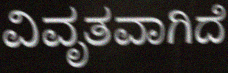
ವಿವೃತವಾಗಿದೆ